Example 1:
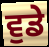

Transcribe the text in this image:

ਵੁਡੇ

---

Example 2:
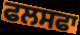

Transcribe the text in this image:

ਫਲਸਫਾ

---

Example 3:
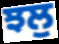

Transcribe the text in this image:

ਝਲੁ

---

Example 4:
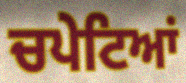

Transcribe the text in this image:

ਚਪੇਟਿਆਂ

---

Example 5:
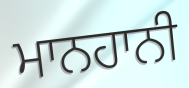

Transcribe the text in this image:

ਮਾਨਹਾਨੀ